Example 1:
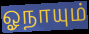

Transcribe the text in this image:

ஓநாயும்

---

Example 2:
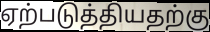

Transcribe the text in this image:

ஏற்படுத்தியதற்கு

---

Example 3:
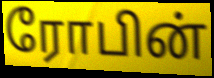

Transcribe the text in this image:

ரோபின்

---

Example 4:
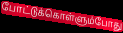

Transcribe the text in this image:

போட்டுக்கொள்ளும்போது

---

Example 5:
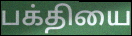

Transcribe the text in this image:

பக்தியை